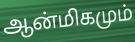
ஆன்மிகமும்